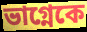
ভাগ্নেকে